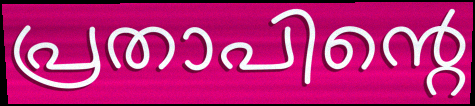
പ്രതാപിന്റെ